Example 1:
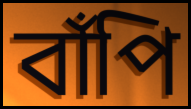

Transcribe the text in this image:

বাঁপি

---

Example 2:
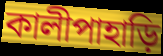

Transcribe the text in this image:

কালীপাহাড়ি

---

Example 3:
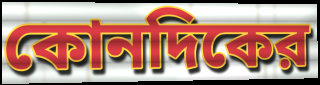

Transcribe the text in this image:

কোনদিকের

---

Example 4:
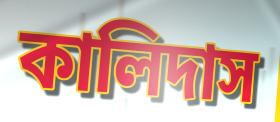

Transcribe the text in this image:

কালিদাস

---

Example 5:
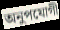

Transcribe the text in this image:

অনুপযোগী